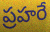
ప్రహరే